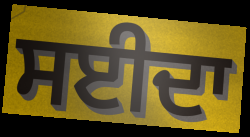
ਸਈਦਾ